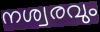
നശ്വരവും